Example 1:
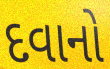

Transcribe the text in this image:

દવાનો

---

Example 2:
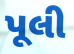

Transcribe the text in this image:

પૂલી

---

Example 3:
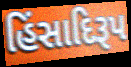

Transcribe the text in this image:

હિંસાદિરૂપ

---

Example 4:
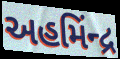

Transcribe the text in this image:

અહમિંન્દ્ર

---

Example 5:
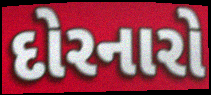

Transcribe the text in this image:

દોરનારો